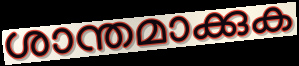
ശാന്തമാക്കുക